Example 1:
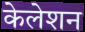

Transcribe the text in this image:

केलेशन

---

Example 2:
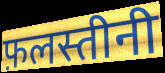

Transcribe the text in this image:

फ़लस्तीनी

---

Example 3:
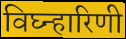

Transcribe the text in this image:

विघ्न्हारिणी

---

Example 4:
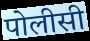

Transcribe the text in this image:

पोलीसी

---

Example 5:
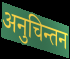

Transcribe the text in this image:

अनुचिन्तन